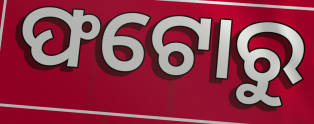
ଫଟୋରୁ